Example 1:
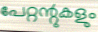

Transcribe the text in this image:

പേറ്റന്റുകളും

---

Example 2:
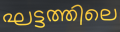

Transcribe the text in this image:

ഘട്ടത്തിലെ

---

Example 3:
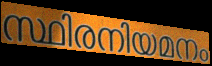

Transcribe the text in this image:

സ്ഥിരനിയമനം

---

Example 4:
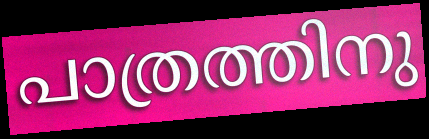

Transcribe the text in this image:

പാത്രത്തിനു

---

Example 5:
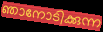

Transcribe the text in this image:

ഞാനോടിക്കുന്ന